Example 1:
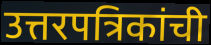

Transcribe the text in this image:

उत्तरपत्रिकांची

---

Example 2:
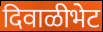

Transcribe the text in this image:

दिवाळीभेट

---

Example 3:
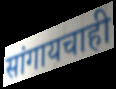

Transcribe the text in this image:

सांगायचाही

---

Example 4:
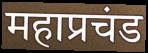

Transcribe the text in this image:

महाप्रचंड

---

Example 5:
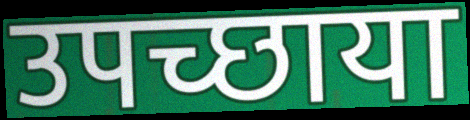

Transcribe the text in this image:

उपच्छाया